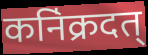
कनि॑क्रदत्